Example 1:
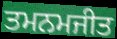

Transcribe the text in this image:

ਤਮਨਮਜੀਤ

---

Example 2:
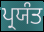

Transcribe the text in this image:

ਪ੍ਰਯੰਤ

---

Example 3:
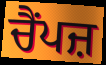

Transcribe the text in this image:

ਚੈਂਪਜ਼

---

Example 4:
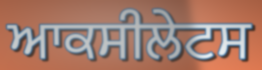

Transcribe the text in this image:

ਆਕਸੀਲੇਟਸ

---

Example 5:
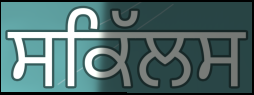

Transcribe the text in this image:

ਸਕਿੱਲਸ